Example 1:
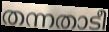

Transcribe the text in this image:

തന്നതാടീ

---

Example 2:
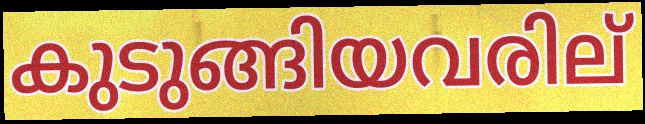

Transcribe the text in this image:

കുടുങ്ങിയവരില്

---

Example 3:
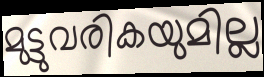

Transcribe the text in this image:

മുട്ടുവരികയുമില്ല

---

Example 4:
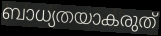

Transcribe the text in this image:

ബാധ്യതയാകരുത്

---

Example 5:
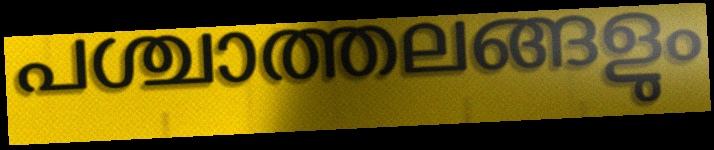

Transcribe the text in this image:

പശ്ചാത്തലങ്ങളും